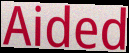
Aided